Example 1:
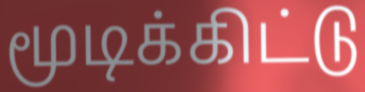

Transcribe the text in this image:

மூடிக்கிட்டு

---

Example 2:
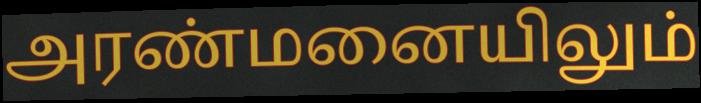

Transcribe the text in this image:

அரண்மனையிலும்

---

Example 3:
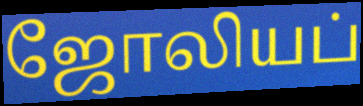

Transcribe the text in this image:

ஜோலியப்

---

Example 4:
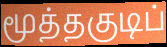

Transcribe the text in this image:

மூத்தகுடிப்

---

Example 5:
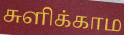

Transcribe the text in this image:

சுளிக்காம